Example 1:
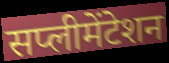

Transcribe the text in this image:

सप्लीमेंटेशन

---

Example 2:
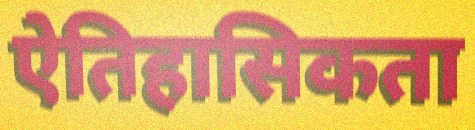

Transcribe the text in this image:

ऐतिहासिकता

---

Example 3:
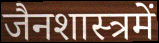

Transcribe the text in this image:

जैनशास्त्रमें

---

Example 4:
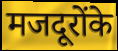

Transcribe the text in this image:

मजदूरोंके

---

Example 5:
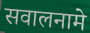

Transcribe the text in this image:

सवालनामे